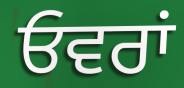
ਓਵਰਾਂ